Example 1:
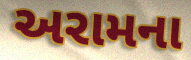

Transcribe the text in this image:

અરામના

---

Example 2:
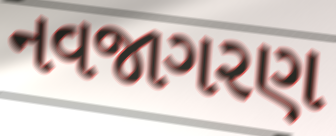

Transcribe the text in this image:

નવજાગરણ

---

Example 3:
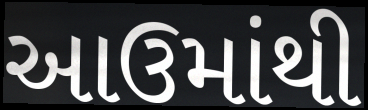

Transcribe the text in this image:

આઉમાંથી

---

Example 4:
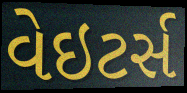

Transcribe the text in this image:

વેઇટર્સ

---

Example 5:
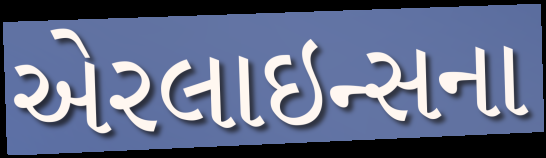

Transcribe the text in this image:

એરલાઇન્સના